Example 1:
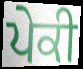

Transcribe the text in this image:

ਪੇਕੀ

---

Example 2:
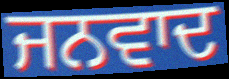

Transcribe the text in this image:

ਜਨਵਾਦ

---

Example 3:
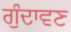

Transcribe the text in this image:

ਗੁੰਦਾਵਣ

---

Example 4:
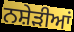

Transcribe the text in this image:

ਨਸ਼ੇੜੀਆਂ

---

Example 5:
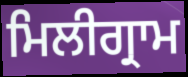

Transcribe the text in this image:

ਮਿਲੀਗ੍ਰਾਮ